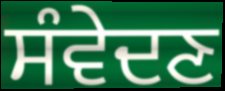
ਸੰਵੇਦਣ